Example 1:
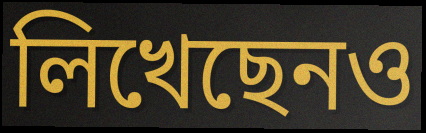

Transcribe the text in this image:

লিখেছেনও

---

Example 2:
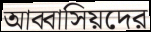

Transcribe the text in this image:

আব্বাসিয়দের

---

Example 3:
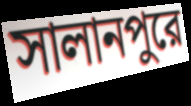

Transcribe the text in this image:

সালানপুরে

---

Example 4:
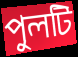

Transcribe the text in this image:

পুলটি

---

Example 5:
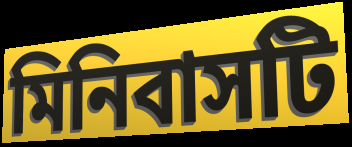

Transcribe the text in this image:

মিনিবাসটি